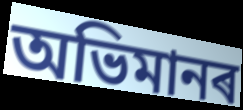
অভিমানৰ